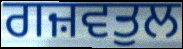
ਗਜ਼ਵਤੁਲ